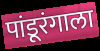
पांडूरंगाला